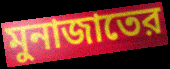
মুনাজাতের